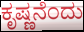
ಕೃಷ್ಣನೆಂದು